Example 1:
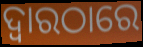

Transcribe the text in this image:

ଦ୍ୱାରଠାରେ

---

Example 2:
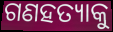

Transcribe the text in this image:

ଗଣହତ୍ୟାକୁ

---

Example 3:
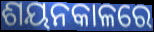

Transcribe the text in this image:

ଶୟନକାଳରେ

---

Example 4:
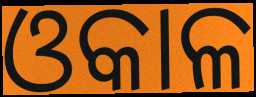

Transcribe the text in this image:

ଓକାଳ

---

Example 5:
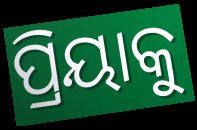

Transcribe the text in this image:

ପ୍ରିୟାକୁ